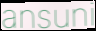
ansuni